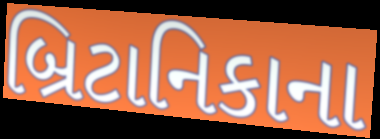
બ્રિટાનિકાના